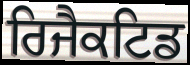
ਰਿਜੈਕਟਿਡ